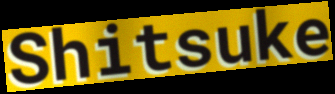
Shitsuke